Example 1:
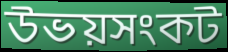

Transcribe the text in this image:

উভয়সংকট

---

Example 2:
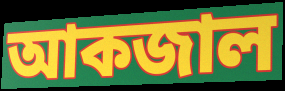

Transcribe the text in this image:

আকজাল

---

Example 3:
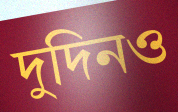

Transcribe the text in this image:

দুদিনও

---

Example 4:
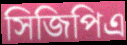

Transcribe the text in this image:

সিজিপিএ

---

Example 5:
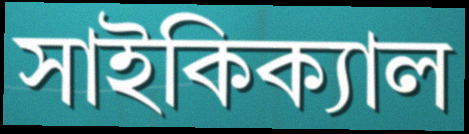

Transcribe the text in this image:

সাইকিক্যাল